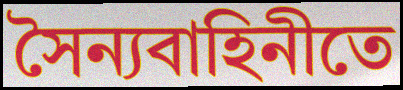
সৈন্যবাহিনীতে